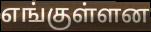
எங்குள்ளன